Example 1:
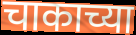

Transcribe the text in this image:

चाकाच्या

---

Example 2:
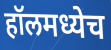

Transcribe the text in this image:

हॉलमध्येच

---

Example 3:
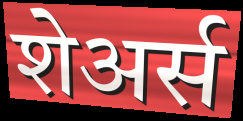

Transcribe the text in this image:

शेअर्स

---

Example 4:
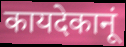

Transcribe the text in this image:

कायदेकानूं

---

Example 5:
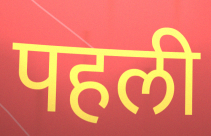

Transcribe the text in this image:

पहली